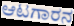
ಆಟಗಾರನ